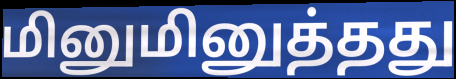
மினுமினுத்தது